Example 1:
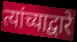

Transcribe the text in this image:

त्यांच्याद्वारे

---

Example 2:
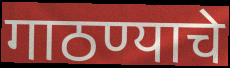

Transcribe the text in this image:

गाठण्याचे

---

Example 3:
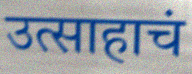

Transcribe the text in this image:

उत्साहाचं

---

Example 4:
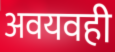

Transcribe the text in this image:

अवयवही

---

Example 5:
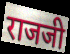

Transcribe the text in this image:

राजजी